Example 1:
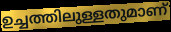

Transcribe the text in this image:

ഉച്ചത്തിലുള്ളതുമാണ്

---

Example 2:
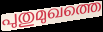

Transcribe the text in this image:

പുതുമുഖത്തെ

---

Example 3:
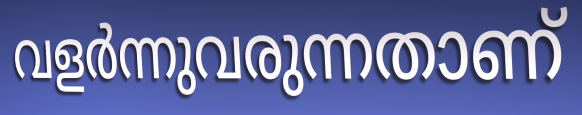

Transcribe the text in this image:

വളർന്നുവരുന്നതാണ്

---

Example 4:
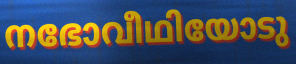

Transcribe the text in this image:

നഭോവീഥിയോടു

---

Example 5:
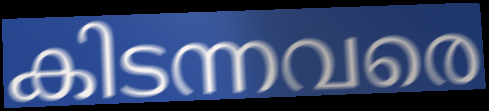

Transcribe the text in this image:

കിടന്നവരെ